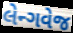
લેન્ગવેજ